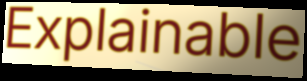
Explainable